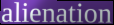
alienation